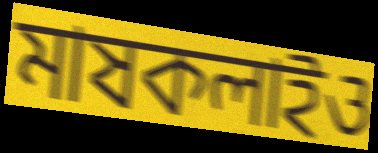
মাষকলাইও